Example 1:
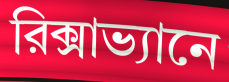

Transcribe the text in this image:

রিক্সাভ্যানে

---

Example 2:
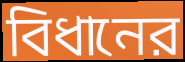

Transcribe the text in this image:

বিধানের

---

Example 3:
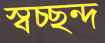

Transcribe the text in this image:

স্বচ্ছন্দ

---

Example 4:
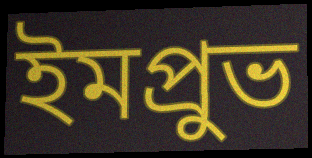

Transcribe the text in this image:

ইমপ্রুভ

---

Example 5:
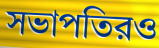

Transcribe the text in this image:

সভাপতিরও